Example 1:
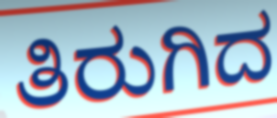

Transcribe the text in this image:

ತಿರುಗಿದ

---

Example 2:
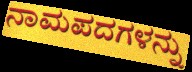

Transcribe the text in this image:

ನಾಮಪದಗಳನ್ನು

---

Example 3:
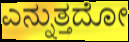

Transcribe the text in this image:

ಎನ್ನುತ್ತದೋ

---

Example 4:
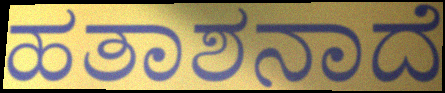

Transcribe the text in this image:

ಹತಾಶನಾದೆ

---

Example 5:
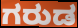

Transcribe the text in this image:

ಗರುಡ